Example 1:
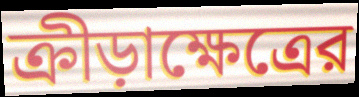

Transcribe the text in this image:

ক্রীড়াক্ষেত্রের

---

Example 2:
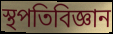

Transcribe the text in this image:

স্থপতিবিজ্ঞান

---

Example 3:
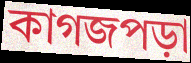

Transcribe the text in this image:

কাগজপড়া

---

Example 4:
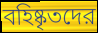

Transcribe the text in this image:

বহিষ্কৃতদের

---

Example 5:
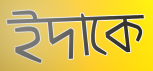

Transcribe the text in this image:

ইদাকে